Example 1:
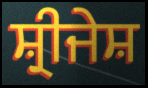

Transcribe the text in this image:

ਸ਼੍ਰੀਜੇਸ਼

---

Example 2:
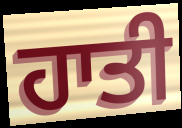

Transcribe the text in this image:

ਹਾਤੀ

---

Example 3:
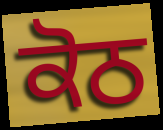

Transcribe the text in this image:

ਕੋਠ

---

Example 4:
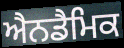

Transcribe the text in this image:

ਐਨਡੈਮਿਕ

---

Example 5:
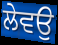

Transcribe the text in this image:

ਲੇਵਉ